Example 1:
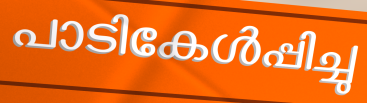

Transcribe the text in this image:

പാടികേൾപ്പിച്ചു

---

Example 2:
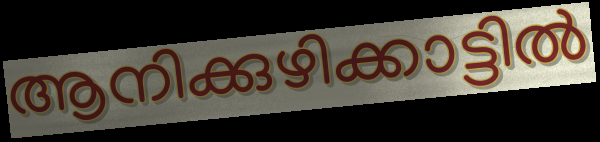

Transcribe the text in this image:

ആനിക്കുഴിക്കാട്ടിൽ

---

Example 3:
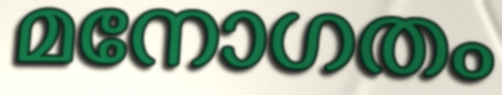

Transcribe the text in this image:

മനോഗതം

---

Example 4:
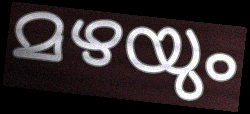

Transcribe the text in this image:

മഴയും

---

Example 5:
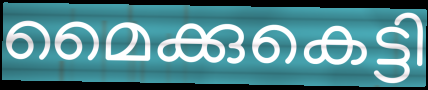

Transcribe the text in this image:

മൈക്കുകെട്ടി